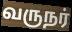
வருநர்